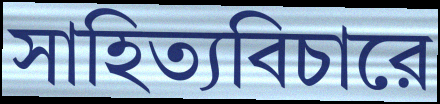
সাহিত্যবিচারে